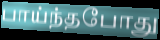
பாய்ந்தபோது